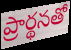
ప్రార్థనతో